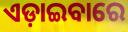
ଏଡ଼ାଇବାରେ